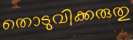
തൊടുവിക്കരുതു